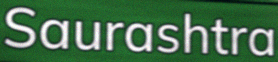
Saurashtra